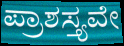
ಪ್ರಾಶಸ್ತ್ಯವೇ